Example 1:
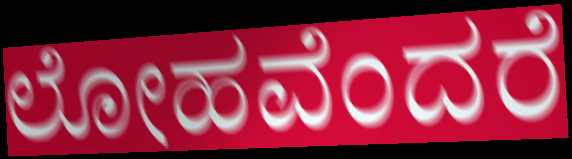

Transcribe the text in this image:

ಲೋಹವೆಂದರೆ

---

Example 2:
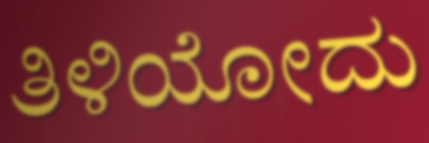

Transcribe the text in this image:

ತಿಳಿಯೋದು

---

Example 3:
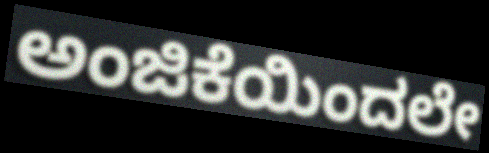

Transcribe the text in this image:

ಅಂಜಿಕೆಯಿಂದಲೇ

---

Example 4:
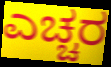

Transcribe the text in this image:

ಎಚ್ಚರ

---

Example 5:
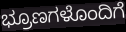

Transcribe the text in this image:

ಭ್ರೂಣಗಳೊಂದಿಗೆ